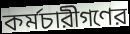
কর্মচারীগণের